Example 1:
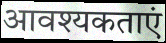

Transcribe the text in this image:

आवश्‍यकताएं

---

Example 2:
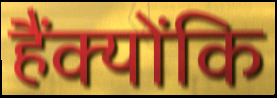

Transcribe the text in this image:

हैंक्योंकि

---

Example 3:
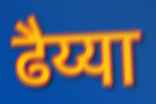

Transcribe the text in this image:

ढैय्या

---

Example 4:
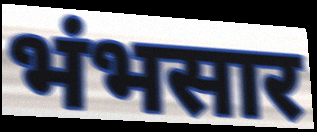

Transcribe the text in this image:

भंभसार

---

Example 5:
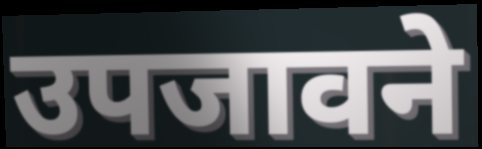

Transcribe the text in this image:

उपजावने